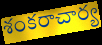
శంకరాచార్య